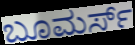
ಬೂಮರ್ಸ್